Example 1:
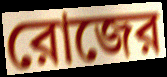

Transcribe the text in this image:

রোজের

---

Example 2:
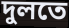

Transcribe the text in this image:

দুলতে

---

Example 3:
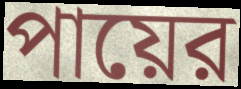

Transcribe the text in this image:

পায়ের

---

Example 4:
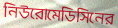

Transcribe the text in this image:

নিউরোমেডিসিনের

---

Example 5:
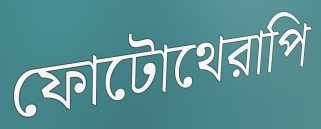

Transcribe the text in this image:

ফোটোথেরাপি